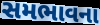
સમભાવના